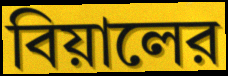
বিয়ালের